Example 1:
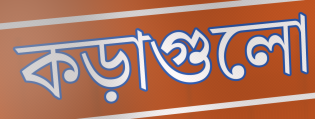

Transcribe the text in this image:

কড়াগুলো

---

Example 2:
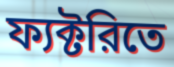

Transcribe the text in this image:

ফ্যক্টরিতে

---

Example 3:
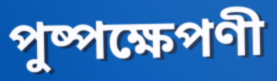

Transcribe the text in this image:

পুষ্পক্ষেপণী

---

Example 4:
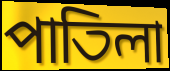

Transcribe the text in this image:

পাতিলা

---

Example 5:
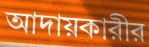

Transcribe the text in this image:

আদায়কারীর